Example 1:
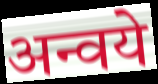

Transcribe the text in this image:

अन्‍वये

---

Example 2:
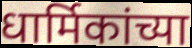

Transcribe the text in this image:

धार्मिकांच्या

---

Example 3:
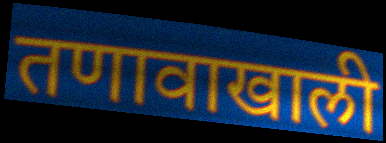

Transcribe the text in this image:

तणावाखाली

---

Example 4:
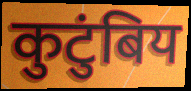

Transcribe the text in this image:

कुटुंबिय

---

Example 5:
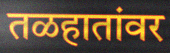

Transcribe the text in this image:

तळहातांवर